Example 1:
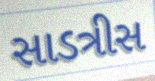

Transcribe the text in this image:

સાડત્રીસ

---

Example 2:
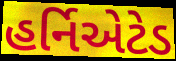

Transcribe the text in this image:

હર્નિએટેડ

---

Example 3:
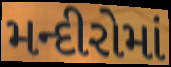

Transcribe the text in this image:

મન્દીરોમાં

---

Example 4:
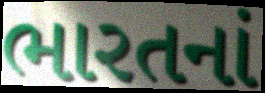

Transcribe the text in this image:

ભારતનાં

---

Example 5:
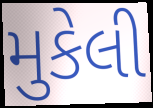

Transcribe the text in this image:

મુકેલી